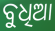
ବୁଧିଆ